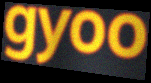
gyoo